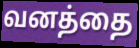
வனத்தை